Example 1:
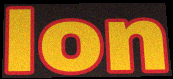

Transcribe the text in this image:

Ion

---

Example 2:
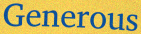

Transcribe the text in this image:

Generous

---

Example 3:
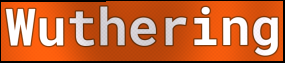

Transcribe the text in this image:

Wuthering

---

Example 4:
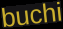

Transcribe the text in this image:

buchi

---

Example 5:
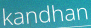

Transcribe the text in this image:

kandhan